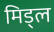
मिड्ल